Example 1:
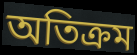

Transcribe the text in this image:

অতিক্ৰম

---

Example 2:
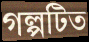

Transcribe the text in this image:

গল্পটিত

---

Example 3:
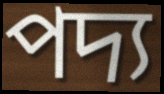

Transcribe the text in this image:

পদ্য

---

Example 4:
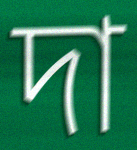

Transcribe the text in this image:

দা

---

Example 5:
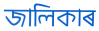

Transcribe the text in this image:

জালিকাৰ